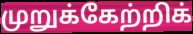
முறுக்கேற்றிக்